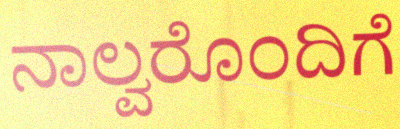
ನಾಲ್ವರೊಂದಿಗೆ